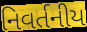
નિવર્તનીય